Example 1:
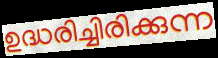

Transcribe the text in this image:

ഉദ്ധരിച്ചിരിക്കുന്ന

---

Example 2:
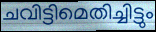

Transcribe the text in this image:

ചവിട്ടിമെതിച്ചിട്ടും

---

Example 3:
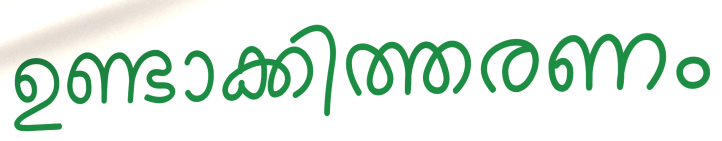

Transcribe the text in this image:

ഉണ്ടാക്കിത്തരണം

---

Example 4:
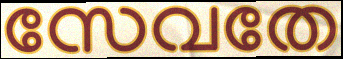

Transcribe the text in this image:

സേവതേ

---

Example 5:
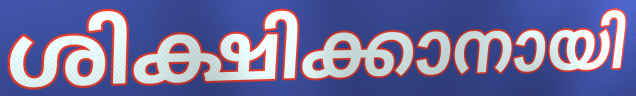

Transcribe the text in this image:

ശിക്ഷിക്കാനായി